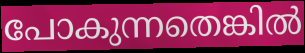
പോകുന്നതെങ്കിൽ